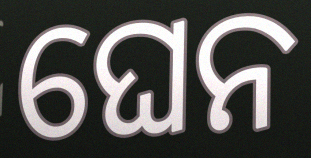
ଘେନ